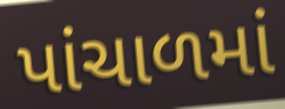
પાંચાળમાં